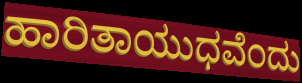
ಹಾರಿತಾಯುಧವೆಂದು